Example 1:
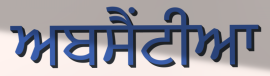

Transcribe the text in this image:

ਅਬਸੈਂਟੀਆ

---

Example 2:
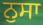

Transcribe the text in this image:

ਨੁਸਾ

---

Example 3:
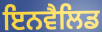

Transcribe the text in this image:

ਇਨਵੈਲਿਡ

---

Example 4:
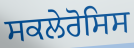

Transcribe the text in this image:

ਸਕਲੇਰੋਸਿਸ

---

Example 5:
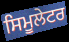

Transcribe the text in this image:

ਸਿਮੂਲੇਟਰ